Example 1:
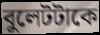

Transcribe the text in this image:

বুলেটটাকে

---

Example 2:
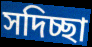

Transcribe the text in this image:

সদিচ্ছা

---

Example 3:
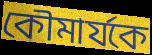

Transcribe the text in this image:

কৌমার্যকে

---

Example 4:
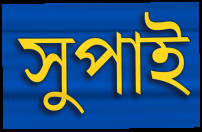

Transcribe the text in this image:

সুপাই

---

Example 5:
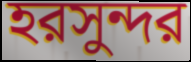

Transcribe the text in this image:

হরসুন্দর